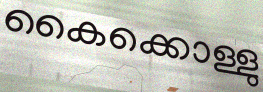
കൈക്കൊള്ളു